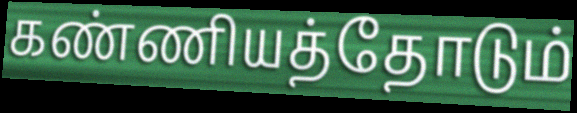
கண்ணியத்தோடும்